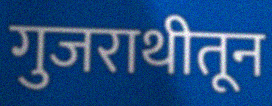
गुजराथीतून